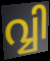
വ്വി